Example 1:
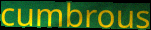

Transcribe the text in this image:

cumbrous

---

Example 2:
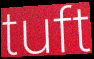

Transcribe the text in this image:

tuft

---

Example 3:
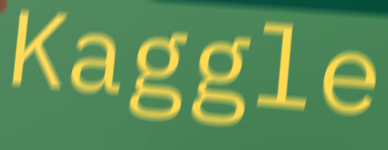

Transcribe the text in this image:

Kaggle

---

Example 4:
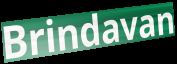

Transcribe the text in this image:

Brindavan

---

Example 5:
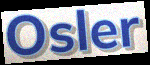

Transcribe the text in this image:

Osler